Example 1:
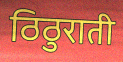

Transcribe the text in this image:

ठिठुराती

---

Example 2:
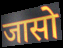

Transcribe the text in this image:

जासो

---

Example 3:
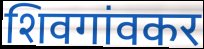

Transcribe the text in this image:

शिवगांवकर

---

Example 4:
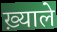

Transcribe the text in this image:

ख़्याले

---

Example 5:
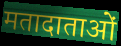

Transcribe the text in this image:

मतादाताओं